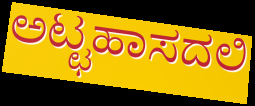
ಅಟ್ಟಹಾಸದಲಿ